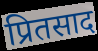
प्रितसाद